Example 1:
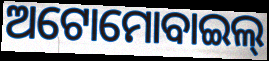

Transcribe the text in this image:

ଅଟୋମୋବାଇଲ୍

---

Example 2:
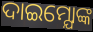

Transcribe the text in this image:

ଦାଇମ୍ଯୋଙ୍କ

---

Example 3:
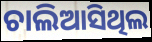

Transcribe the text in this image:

ଚାଲିଆସିଥିଲ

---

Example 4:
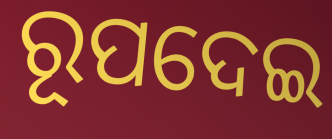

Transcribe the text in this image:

ରୂପଦେଇ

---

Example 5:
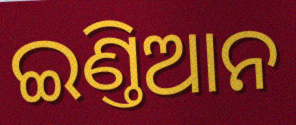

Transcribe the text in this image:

ଇଣ୍ତିଆନ